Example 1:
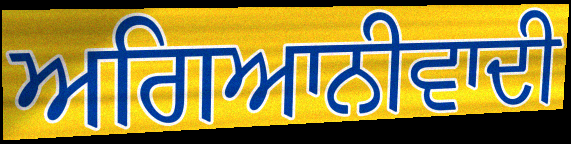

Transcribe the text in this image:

ਅਗਿਆਨੀਵਾਦੀ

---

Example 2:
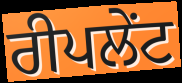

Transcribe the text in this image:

ਰੀਪਲੇਂਟ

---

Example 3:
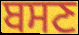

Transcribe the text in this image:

ਬਸਣ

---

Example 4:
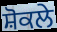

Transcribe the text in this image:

ਸ਼ੋਕਲੇ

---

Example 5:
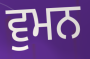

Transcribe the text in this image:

ਵੁਮਨ